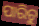
ପାରିଚୁ